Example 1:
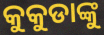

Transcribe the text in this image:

କୁକୁଡାଙ୍କୁ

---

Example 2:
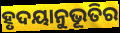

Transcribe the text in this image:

ହୃଦୟାନୁଭୂତିର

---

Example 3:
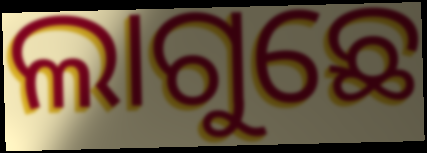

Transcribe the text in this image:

ଲାଗୁଛେ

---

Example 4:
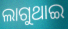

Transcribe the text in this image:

ଲାଗୁଥାଇ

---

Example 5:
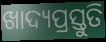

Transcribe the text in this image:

ଖାଦ୍ୟପ୍ରସ୍ତୁତି